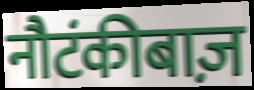
नौटंकीबाज़